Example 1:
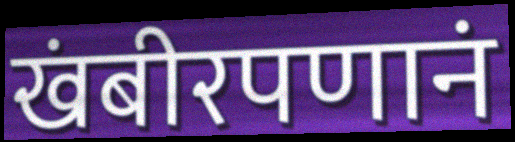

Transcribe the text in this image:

खंबीरपणानं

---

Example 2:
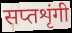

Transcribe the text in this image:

सप्तशृंगी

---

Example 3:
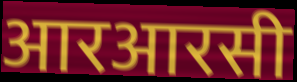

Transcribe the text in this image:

आरआरसी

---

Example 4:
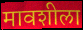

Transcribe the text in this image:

मावशीला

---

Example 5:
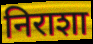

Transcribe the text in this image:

निराशा